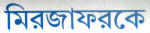
মিরজাফরকে